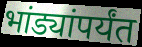
भांड्यांपर्यंत